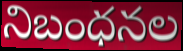
నిబంధనల